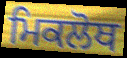
ਮਿਕਲੋਥ